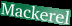
Mackerel